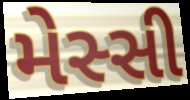
મેસ્સી